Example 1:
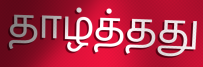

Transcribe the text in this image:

தாழ்த்தது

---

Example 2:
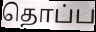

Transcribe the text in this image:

தொப்ப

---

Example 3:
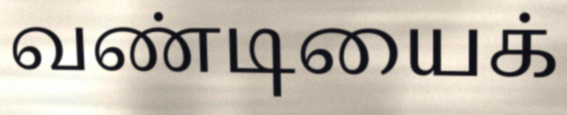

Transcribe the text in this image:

வண்டியைக்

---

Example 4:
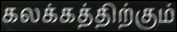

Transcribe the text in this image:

கலக்கத்திற்கும்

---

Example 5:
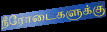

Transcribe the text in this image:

நீரோடைகளுக்கு